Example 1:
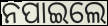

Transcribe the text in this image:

ନପାଇଲେ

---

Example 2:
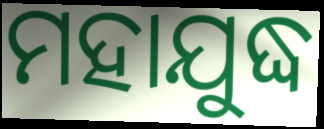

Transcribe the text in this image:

ମହାଯୁଦ୍ଧ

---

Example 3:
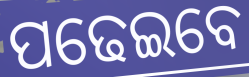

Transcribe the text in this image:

ପଢେଇବେ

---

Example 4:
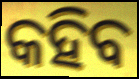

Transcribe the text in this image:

କହିବ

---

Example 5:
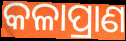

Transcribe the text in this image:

କଳାପ୍ରାଣ